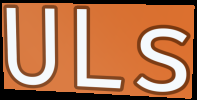
ULs